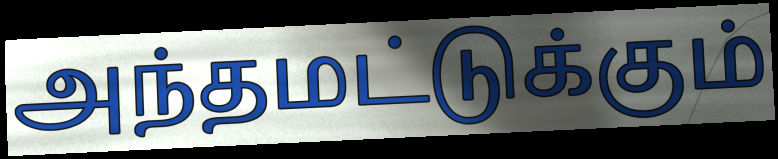
அந்தமட்டுக்கும்